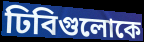
ঢিবিগুলোকে